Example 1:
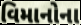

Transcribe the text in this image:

વિમાનોના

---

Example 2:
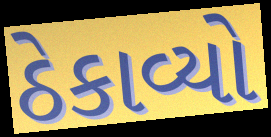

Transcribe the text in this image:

ઠેકાવ્યો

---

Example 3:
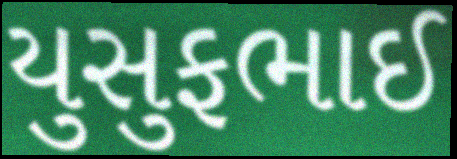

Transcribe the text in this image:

યુસુફભાઈ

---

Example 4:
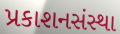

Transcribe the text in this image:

પ્રકાશનસંસ્થા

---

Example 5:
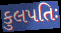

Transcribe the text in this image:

કુલપતિઃ